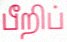
பீறிப்